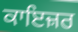
ਕਾਇਜ਼ਰ